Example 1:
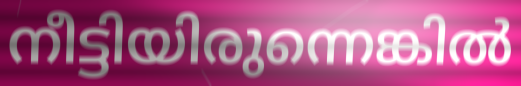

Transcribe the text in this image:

നീട്ടിയിരുന്നെങ്കിൽ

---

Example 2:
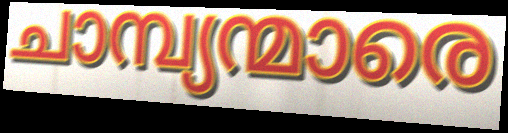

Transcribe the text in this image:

ചാമ്പ്യന്മാരെ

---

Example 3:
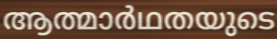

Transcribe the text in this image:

ആത്മാർഥതയുടെ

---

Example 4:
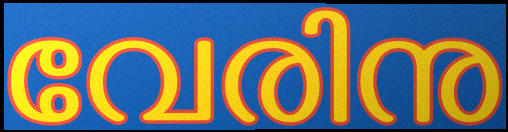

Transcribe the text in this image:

വേരിനു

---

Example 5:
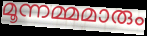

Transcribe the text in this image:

മൂന്നമ്മമാരും